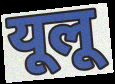
यूलू